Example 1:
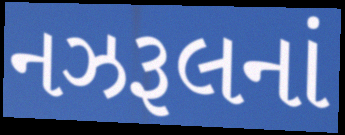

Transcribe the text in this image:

નઝરૂલનાં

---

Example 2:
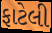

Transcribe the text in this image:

ફાટેલી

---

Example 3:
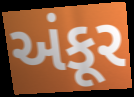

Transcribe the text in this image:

અંકૂર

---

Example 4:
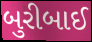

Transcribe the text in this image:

બુરીબાઈ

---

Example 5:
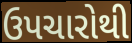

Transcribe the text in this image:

ઉપચારોથી